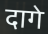
दागे